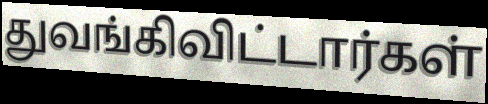
துவங்கிவிட்டார்கள்